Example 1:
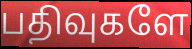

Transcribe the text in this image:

பதிவுகளே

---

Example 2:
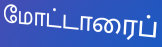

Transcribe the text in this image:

மோட்டாரைப்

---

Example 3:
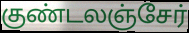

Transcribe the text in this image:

குண்டலஞ்சேர்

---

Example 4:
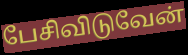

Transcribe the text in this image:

பேசிவிடுவேன்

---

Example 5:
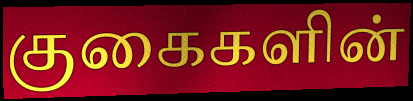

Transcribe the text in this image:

குகைகளின்